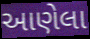
આણેલા